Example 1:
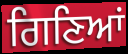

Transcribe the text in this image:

ਗਿਣਿਆਂ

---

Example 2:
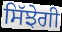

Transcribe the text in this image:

ਸਿੱਝੇਗੀ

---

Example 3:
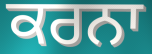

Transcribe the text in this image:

ਕਰਨਾ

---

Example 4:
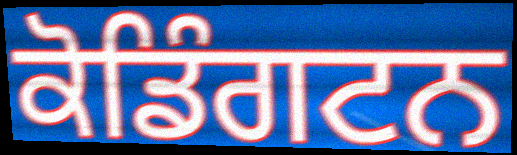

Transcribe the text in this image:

ਕੋਡਿੰਗਟਨ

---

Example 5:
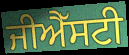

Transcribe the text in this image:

ਜੀਐੱਸਟੀ